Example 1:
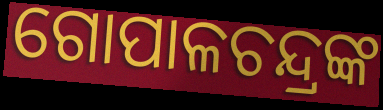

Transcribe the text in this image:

ଗୋପାଳଚନ୍ଦ୍ରଙ୍କ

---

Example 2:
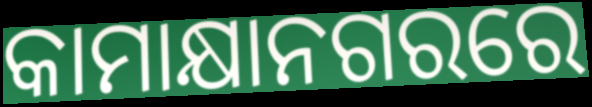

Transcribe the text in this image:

କାମାକ୍ଷାନଗରରେ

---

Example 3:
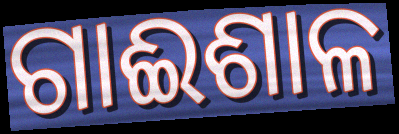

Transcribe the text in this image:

ଗାଈଶାଳ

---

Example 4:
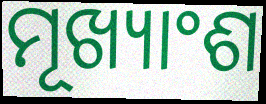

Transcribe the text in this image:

ମୂଖ୍ୟାଂଶ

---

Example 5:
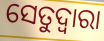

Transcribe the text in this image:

ସେତୁଦ୍ୱାରା